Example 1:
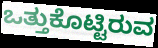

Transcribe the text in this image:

ಒತ್ತುಕೊಟ್ಟಿರುವ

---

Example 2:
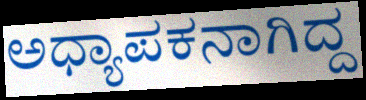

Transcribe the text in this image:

ಅಧ್ಯಾಪಕನಾಗಿದ್ದ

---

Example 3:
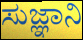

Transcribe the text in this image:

ಸುಜ್ಞಾನಿ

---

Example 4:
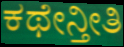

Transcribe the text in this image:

ಕಥೇನ್ತೀತಿ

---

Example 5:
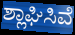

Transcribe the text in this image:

ಶ್ಲಾಘಿಸಿವೆ